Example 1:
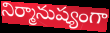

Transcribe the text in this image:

నిర్మానుష్యంగా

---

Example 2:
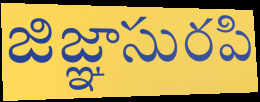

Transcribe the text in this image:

జిజ్ఞాసురపి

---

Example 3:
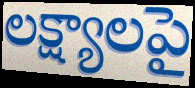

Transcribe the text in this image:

లక్ష్యాలపై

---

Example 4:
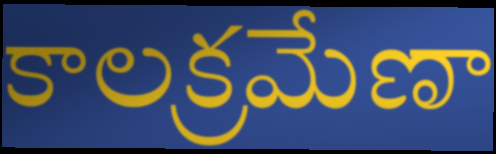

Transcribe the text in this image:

కాలక్రమేణా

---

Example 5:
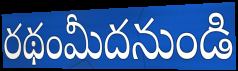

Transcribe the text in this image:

రథంమీదనుండి